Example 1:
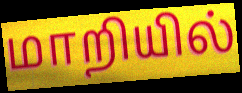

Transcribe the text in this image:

மாறியில்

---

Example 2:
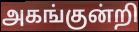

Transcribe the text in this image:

அகங்குன்றி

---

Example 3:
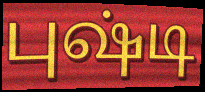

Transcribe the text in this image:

புஷ்டி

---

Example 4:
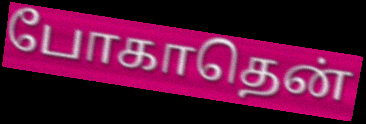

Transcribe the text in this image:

போகாதென்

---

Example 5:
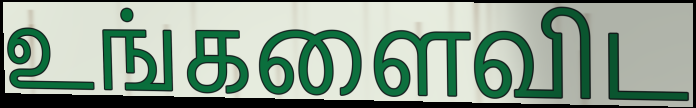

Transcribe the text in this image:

உங்களைவிட